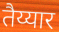
तैय्यार